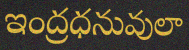
ఇంద్రధనువులా